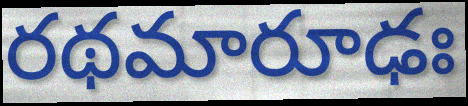
రథమారూఢః